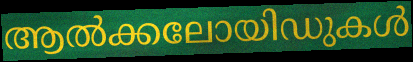
ആൽക്കലോയിഡുകൾ